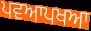
ਪਵਆਪਖਆ